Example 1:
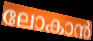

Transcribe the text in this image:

ലോകാൻ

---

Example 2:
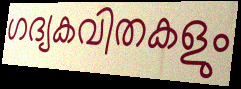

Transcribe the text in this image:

ഗദ്യകവിതകളും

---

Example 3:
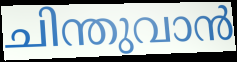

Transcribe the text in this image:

ചിന്തുവാൻ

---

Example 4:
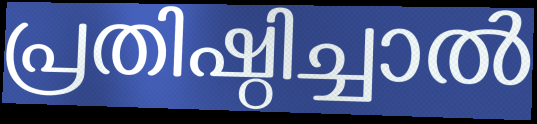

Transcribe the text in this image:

പ്രതിഷ്ഠിച്ചാൽ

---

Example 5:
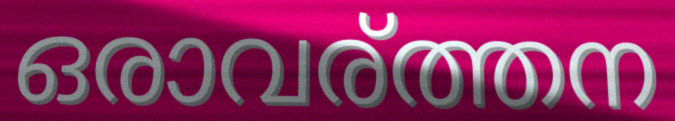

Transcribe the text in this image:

ഒരാവര്ത്തന